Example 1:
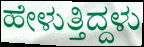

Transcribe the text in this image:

ಹೇಳುತ್ತಿದ್ದಳು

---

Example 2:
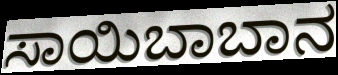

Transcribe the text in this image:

ಸಾಯಿಬಾಬಾನ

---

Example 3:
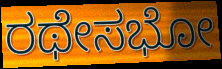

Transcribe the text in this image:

ರಥೇಸಭೋ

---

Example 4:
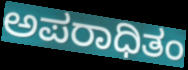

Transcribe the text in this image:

ಅಪರಾಧಿತಂ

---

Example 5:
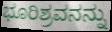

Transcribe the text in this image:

ಭೂರಿಶ್ರವನನ್ನು